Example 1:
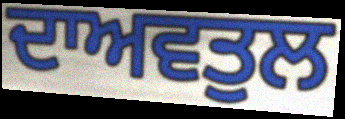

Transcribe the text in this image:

ਦਾਅਵਤੁਲ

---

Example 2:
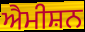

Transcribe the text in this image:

ਐਮੀਸ਼ਨ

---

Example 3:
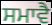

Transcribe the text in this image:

ਸਮਾਵੈ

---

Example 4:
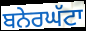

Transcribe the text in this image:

ਬਨੇਰਘੱਟਾ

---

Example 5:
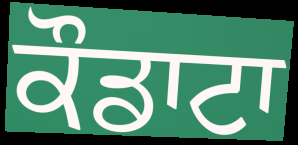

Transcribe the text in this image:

ਕੌਡਾਟਾ